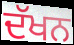
ਦੱਖਨ